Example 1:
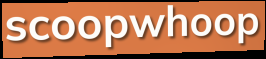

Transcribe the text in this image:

scoopwhoop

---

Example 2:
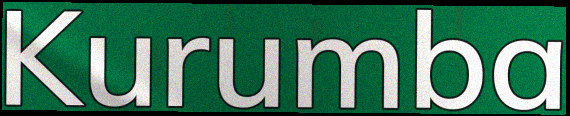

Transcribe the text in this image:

Kurumba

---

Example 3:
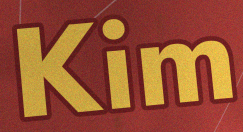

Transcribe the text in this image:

Kim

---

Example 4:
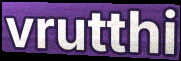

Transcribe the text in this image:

vrutthi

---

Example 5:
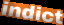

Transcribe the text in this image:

indict